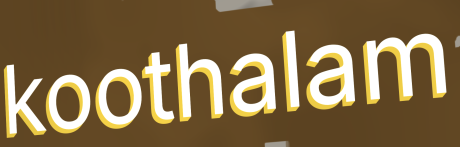
koothalam